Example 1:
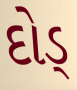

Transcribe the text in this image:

દોડ્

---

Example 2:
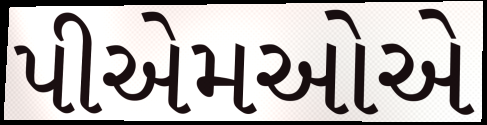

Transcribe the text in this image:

પીએમઓએ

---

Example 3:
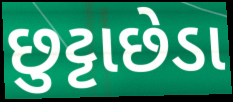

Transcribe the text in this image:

છુટ્ટાછેડા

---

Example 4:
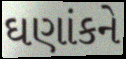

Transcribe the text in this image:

ઘણાંકને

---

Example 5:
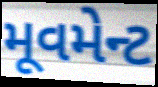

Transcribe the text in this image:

મૂવમેન્ટ